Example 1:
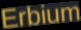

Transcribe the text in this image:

Erbium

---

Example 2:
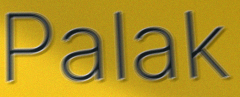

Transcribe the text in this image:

Palak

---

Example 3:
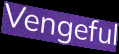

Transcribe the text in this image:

Vengeful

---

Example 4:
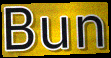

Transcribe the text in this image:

Bun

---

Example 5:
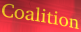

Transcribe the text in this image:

Coalition